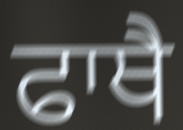
ਫਾਥੈ